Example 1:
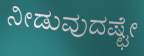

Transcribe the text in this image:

ನೀಡುವುದಷ್ಟೇ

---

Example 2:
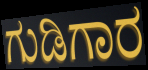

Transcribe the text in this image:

ಗುಡಿಗಾರ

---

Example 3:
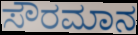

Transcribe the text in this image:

ಸೌರಮಾನ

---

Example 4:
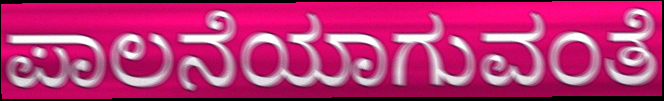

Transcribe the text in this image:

ಪಾಲನೆಯಾಗುವಂತೆ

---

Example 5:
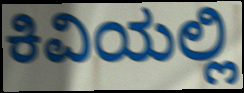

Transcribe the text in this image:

ಕಿವಿಯಲ್ಲಿ